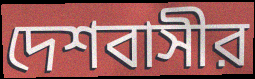
দেশবাসীর